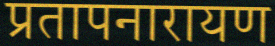
प्रतापनारायण